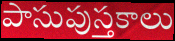
పాసుపుస్తకాలు